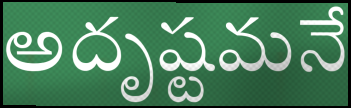
అదృష్టమనే